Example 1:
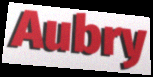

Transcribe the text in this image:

Aubry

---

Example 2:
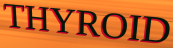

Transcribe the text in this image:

THYROID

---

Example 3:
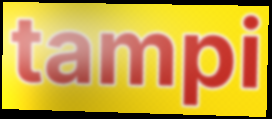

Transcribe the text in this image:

tampi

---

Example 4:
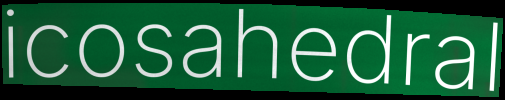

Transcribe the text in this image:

icosahedral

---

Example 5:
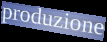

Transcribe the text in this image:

produzione